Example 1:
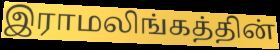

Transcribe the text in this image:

இராமலிங்கத்தின்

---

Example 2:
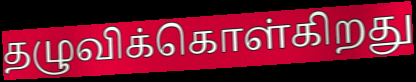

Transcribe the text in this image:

தழுவிக்கொள்கிறது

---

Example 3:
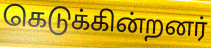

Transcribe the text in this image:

கெடுக்கின்றனர்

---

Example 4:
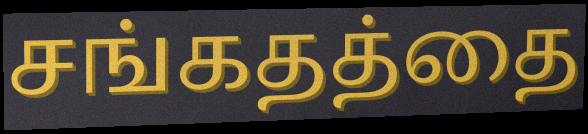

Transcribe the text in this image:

சங்கதத்தை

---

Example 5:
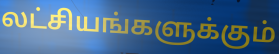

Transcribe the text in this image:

லட்சியங்களுக்கும்